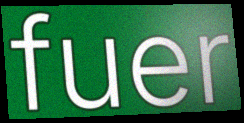
fuer